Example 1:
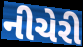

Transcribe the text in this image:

નીચેરી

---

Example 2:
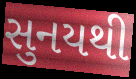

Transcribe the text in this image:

સુનયથી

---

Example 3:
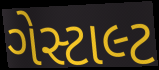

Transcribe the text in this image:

ગેસ્ટાલ્ટ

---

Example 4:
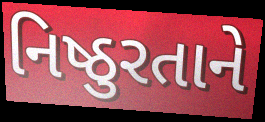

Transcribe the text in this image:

નિષ્ઠુરતાને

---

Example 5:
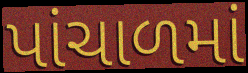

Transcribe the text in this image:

પાંચાળમાં